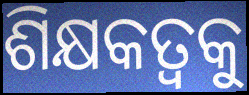
ଶିକ୍ଷକତ୍ଵକୁ